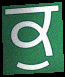
ਕੁ